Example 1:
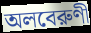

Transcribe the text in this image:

অলবেরুণী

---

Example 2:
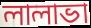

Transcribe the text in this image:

লালাভা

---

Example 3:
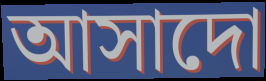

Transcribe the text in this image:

আসাদো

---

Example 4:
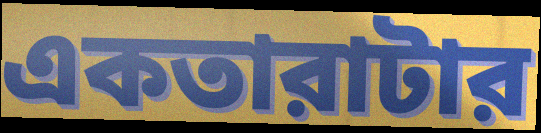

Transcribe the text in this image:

একতারাটার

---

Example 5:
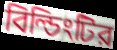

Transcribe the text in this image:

বিল্ডিংটির